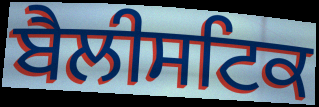
ਬੈਲੀਸਟਿਕ